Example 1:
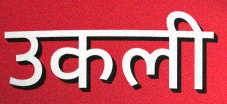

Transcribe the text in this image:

उकली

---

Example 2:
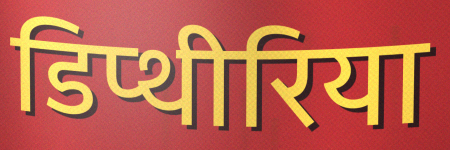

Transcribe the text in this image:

डिप्थीरिया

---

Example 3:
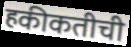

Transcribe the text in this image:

हकीकतीची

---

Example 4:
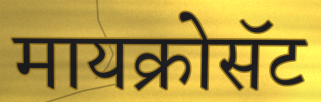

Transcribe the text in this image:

मायक्रोसॅट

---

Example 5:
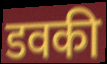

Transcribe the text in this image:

डवकी